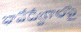
భావోద్వేగాలపై